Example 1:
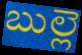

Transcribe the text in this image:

బుల్లె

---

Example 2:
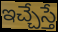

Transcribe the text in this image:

ఇచ్చేస్తే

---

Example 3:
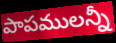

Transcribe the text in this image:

పాపములన్నీ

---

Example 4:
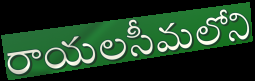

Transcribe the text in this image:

రాయలసీమలోని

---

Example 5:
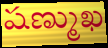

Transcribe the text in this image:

షణ్ముఖ